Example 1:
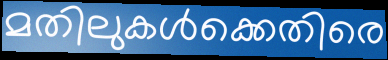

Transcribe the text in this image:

മതിലുകൾക്കെതിരെ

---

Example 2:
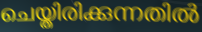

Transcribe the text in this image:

ചെയ്തിരിക്കുന്നതിൽ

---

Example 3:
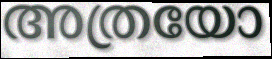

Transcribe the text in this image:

അത്രയോ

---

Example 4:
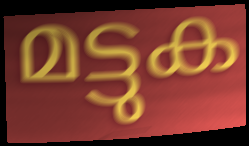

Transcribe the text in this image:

മട്ടുക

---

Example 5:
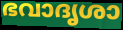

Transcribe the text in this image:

ഭവാദൃശാ